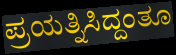
ಪ್ರಯತ್ನಿಸಿದ್ದಂತೂ